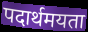
पदार्थमयता